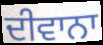
ਦੀਵਾਨਾ